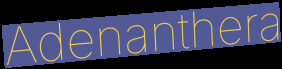
Adenanthera